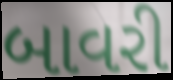
બાવરી